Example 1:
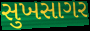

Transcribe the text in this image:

સુખસાગર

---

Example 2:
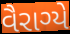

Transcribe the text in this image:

વૈરાગ્યે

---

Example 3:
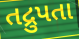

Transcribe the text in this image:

તદ્રુપતા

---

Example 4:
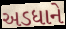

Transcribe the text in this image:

અડધાને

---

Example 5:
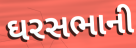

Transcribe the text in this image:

ઘરસભાની